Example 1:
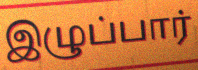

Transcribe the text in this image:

இழுப்பார்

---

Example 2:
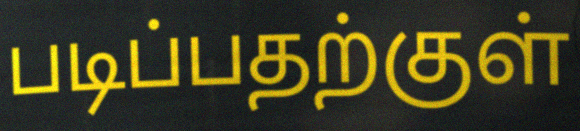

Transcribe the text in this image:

படிப்பதற்குள்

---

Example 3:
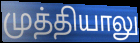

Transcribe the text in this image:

முத்தியாலு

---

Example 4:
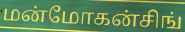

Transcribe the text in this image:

மன்மோகன்சிங்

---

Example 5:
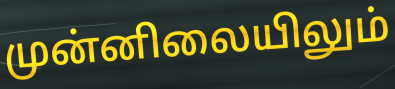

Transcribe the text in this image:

முன்னிலையிலும்